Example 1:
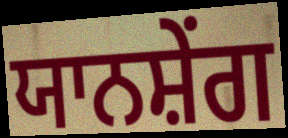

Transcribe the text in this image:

ਯਾਨਸ਼ੇਂਗ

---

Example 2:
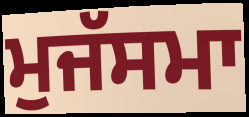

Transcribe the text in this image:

ਮੁਜੱਸਮਾ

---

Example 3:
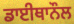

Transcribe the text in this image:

ਡਾਈਥਾਨੌਲ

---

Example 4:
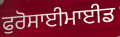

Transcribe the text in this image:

ਫੁਰੋਸਾਈਮਾਈਡ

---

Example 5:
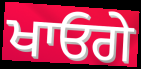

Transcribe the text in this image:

ਖਾਓਗੇ